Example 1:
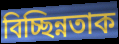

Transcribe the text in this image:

বিচ্ছিন্নতাক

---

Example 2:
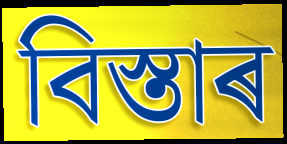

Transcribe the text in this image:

বিস্তাৰ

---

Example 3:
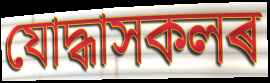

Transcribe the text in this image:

যোদ্ধাসকলৰ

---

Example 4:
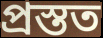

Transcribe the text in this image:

প্ৰস্তত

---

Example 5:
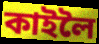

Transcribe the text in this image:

কাইলৈ